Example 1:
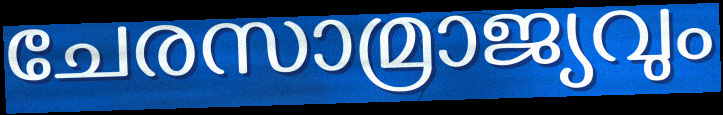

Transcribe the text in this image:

ചേരസാമ്രാജ്യവും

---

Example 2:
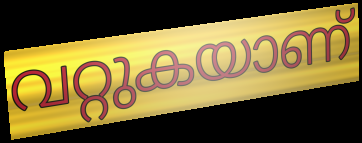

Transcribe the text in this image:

വറ്റുകയാണ്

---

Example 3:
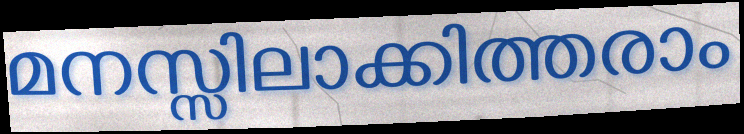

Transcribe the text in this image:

മനസ്സിലാക്കിത്തരാം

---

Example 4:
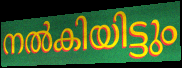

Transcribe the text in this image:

നൽകിയിട്ടും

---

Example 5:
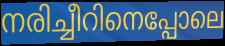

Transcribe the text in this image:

നരിച്ചീറിനെപ്പോലെ